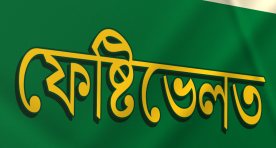
ফেষ্টিভেলত